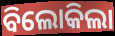
ବିଲୋକିଲା